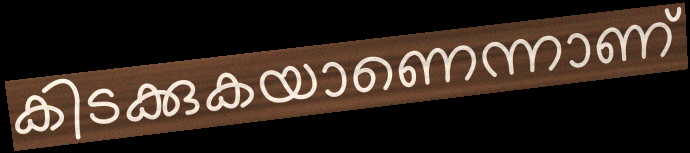
കിടക്കുകയാണെന്നാണ്